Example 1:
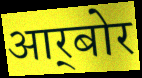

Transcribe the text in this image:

आर्बोर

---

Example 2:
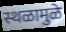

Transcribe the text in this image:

स्थळामुळे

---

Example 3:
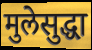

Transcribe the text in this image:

मुलेसुद्धा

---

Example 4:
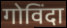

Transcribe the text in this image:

गोविंदा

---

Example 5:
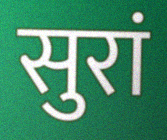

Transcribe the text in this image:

सुरां